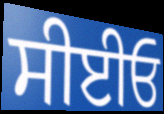
ਸੀਈਓ